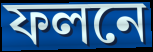
ফলনে